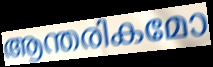
ആന്തരികമോ